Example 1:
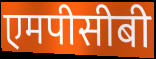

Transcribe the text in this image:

एमपीसीबी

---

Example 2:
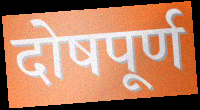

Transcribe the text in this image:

दोषपूर्ण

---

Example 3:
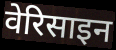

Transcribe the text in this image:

वेरिसाइन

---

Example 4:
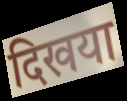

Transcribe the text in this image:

दिखया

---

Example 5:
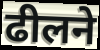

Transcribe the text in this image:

ढीलने